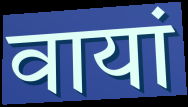
वायां